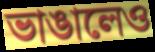
ভাঙালেও